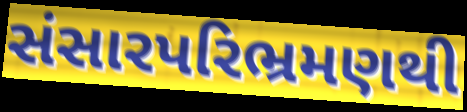
સંસારપરિભ્રમણથી